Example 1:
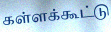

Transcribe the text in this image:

கள்ளக்கூட்டு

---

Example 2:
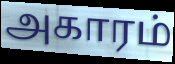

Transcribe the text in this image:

அகாரம்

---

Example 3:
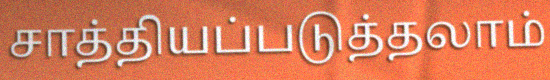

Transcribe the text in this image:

சாத்தியப்படுத்தலாம்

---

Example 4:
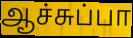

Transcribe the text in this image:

ஆச்சுப்பா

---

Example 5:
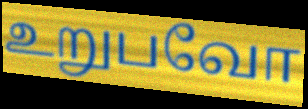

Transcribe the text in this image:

உறுபவோ